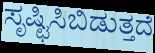
ಸೃಷ್ಟಿಸಿಬಿಡುತ್ತದೆ